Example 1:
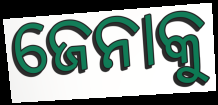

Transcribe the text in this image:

ଜେନାକୁ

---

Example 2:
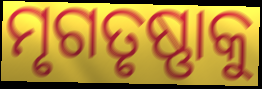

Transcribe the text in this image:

ମୃଗତୃଷ୍ଣାକୁ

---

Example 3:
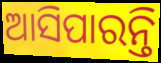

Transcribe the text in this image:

ଆସିପାରନ୍ତି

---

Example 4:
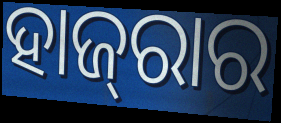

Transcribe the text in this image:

ହାଜ୍‌ରାର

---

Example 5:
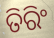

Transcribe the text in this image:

ତିରିଂ